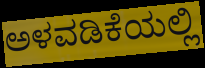
ಅಳವಡಿಕೆಯಲ್ಲಿ